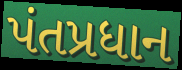
પંતપ્રધાન